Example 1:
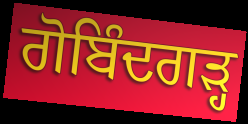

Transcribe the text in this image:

ਗੋਬਿੰਦਗੜ੍ਹ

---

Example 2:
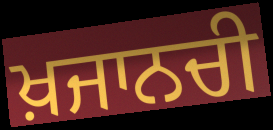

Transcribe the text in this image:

ਖ਼ਜਾਨਚੀ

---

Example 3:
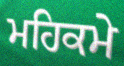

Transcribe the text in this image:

ਮਹਿਕਮੇ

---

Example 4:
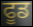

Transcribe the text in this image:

ਫੂਡ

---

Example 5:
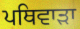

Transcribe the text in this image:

ਪਥਿਵਾੜਾ